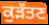
ਕੁੜੱਤਣ